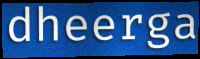
dheerga